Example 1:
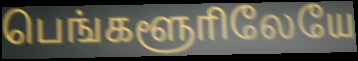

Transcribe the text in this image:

பெங்களூரிலேயே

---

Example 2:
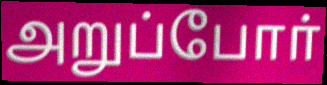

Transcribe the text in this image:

அறுப்போர்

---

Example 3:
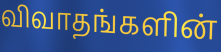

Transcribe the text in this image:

விவாதங்களின்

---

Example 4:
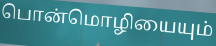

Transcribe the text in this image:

பொன்மொழியையும்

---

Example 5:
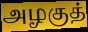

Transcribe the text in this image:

அழகுத்